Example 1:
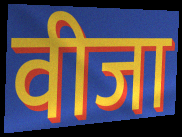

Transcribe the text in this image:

वीजा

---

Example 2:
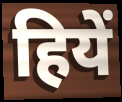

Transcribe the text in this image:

हियें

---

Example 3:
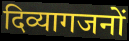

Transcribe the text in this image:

दिव्यागजनों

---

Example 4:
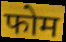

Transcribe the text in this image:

फोम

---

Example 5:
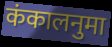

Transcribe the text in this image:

कंकालनुमा